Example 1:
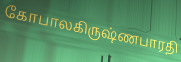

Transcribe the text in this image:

கோபாலகிருஷ்ணபாரதி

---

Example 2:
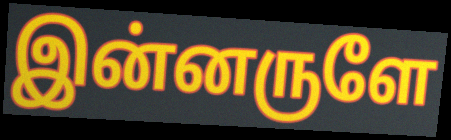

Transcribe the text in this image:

இன்னருளே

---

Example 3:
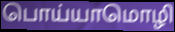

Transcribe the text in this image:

பொய்யாமொழி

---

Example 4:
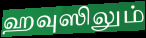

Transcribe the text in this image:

ஹவுஸிலும்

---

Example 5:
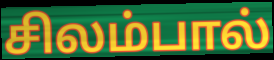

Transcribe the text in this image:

சிலம்பால்